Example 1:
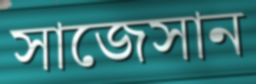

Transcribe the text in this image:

সাজেসান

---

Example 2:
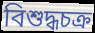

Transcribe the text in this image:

বিশুদ্ধচক্র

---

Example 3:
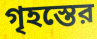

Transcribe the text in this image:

গৃহস্তের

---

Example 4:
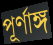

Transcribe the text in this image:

পূর্ণাঙ্গ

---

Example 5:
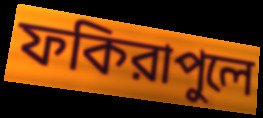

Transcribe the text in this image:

ফকিরাপুলে